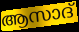
ആസാദ്